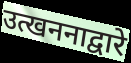
उत्खननाद्वारे